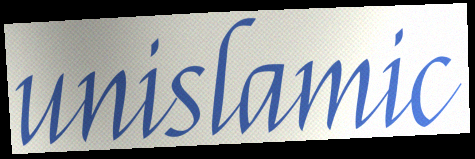
unislamic